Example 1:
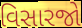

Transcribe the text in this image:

વિસારજો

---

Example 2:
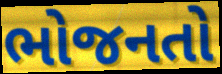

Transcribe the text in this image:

ભોજનતો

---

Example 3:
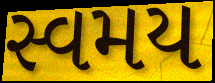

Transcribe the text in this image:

સ્વમય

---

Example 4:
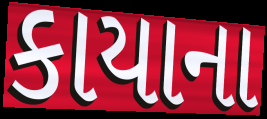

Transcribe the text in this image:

કાયાના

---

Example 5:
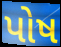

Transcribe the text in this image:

પોષ